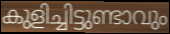
കുളിച്ചിട്ടുണ്ടാവും